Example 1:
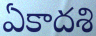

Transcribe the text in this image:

ఏకాదశి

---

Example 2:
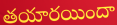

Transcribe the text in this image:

తయారయిందా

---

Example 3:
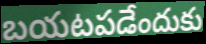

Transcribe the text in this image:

బయటపడేందుకు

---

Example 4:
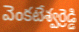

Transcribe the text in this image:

వెంకటేశ్వర్రెడ్డి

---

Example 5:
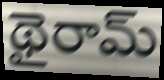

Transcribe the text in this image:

థైరామ్